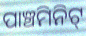
ପାଞ୍ଚମିନିଟ୍